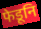
फेडूनि